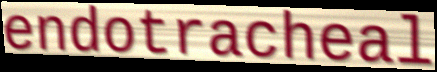
endotracheal